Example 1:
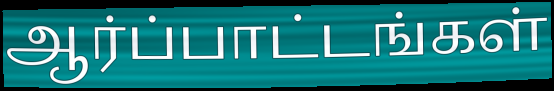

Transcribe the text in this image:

ஆர்ப்பாட்டங்கள்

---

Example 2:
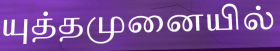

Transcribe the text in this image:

யுத்தமுனையில்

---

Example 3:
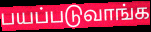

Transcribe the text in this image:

பயப்படுவாங்க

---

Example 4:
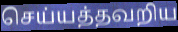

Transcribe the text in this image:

செய்யத்தவறிய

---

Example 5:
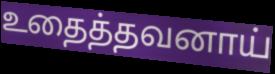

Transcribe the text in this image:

உதைத்தவனாய்